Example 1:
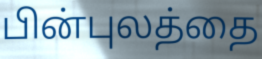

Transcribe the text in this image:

பின்புலத்தை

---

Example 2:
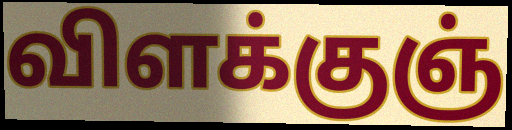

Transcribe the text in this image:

விளக்குஞ்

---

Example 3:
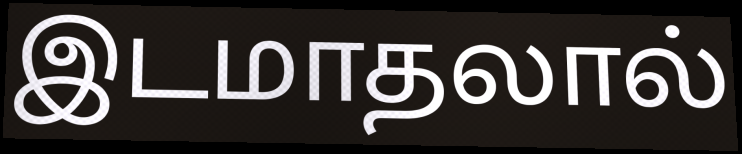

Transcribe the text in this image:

இடமாதலால்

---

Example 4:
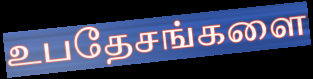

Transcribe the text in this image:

உபதேசங்களை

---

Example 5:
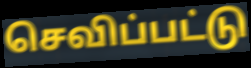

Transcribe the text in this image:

செவிப்பட்டு